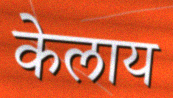
केलाय